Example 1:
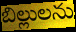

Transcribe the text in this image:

బిల్లులను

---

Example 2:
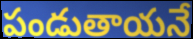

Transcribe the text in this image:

పండుతాయనే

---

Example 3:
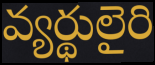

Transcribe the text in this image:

వ్యర్థులైరి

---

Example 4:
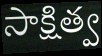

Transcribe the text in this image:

సాక్షిత్వ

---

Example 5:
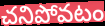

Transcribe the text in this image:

చనిపోవటం